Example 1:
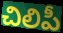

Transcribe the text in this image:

చిలిపీ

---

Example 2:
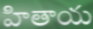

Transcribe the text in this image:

హితాయ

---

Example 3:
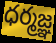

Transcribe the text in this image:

ధర్మజ్ఞ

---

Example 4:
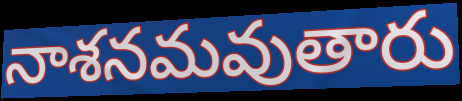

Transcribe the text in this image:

నాశనమవుతారు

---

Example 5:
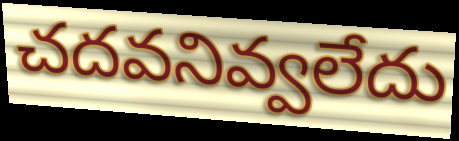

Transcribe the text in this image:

చదవనివ్వలేదు